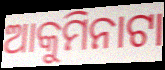
ଆକୁମିନାଟା